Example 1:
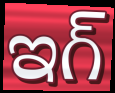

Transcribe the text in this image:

ఇగ్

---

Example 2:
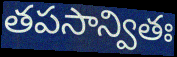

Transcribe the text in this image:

తపసాన్వితః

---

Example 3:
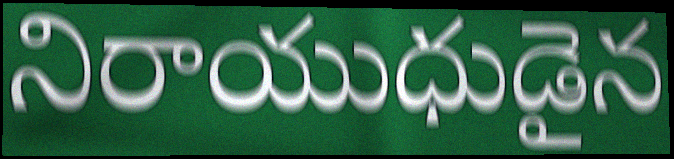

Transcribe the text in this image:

నిరాయుధుడైన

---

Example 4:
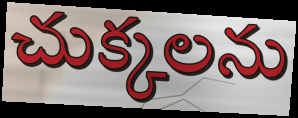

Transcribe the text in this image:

చుక్కలను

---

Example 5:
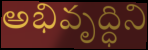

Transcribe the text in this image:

అభివృద్ధిని